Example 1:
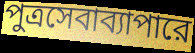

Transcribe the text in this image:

পুত্রসেবাব্যাপারে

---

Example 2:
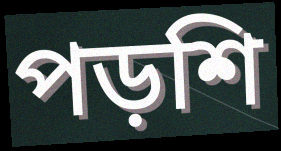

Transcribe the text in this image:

পড়শি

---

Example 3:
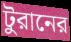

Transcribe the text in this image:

টুরানের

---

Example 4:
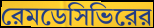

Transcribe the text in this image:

রেমডেসিভিরের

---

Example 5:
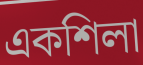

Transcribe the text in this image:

একশিলা